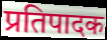
प्रतिपादक